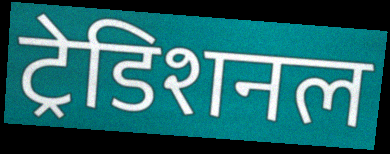
ट्रेडिशनल